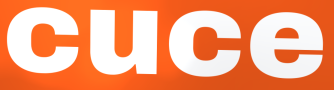
cuce